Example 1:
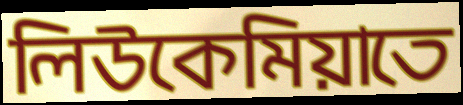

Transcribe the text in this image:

লিউকেমিয়াতে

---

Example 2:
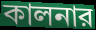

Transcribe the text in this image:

কালনার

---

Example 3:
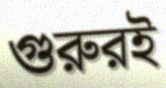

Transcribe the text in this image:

গুরুরই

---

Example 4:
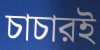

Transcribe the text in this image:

চাচারই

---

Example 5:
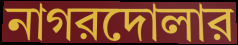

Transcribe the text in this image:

নাগরদোলার